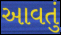
આવતું